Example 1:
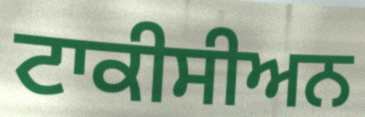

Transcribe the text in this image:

ਟਾਕੀਸੀਅਨ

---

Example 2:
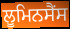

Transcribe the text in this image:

ਲੂਮਿਨਸੈਂਸ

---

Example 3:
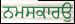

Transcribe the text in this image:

ਨਮਸਕਾਰਉ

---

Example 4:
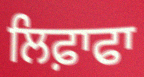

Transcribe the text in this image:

ਲਿਫ਼ਾਫਾ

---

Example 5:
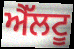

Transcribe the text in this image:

ਐੱਲਟੂ